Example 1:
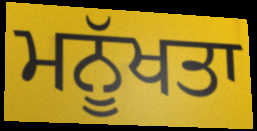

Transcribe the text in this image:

ਮਨੂੱਖਤਾ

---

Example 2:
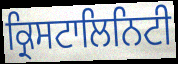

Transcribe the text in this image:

ਕ੍ਰਿਸਟਾਲਿਨਿਟੀ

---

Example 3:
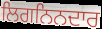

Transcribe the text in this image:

ਲਿਗਨਿਨਦਾਰ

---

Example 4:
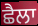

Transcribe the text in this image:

ਛੈਲਾ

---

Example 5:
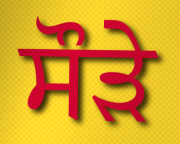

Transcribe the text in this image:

ਸੌੜੇ